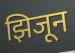
झिजून